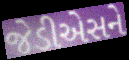
જેડીએસને